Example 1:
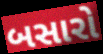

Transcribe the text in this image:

બસારો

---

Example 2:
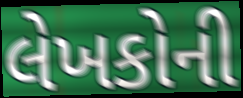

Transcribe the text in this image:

લેખકોની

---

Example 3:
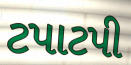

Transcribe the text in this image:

ટપાટપી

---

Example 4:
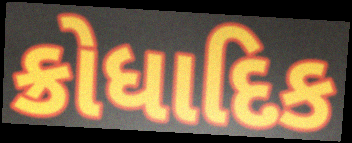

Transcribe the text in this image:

ક્રોધાદિક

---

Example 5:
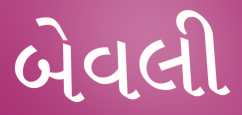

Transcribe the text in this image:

બેવલી